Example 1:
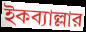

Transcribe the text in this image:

ইকব্যাল্লার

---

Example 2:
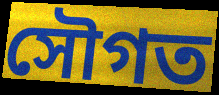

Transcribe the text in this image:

সৌগত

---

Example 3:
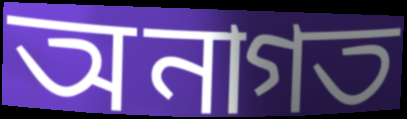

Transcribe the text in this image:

অনাগত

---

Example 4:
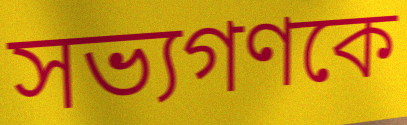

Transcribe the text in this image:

সভ্যগণকে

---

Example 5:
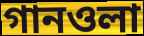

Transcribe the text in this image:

গানওলা